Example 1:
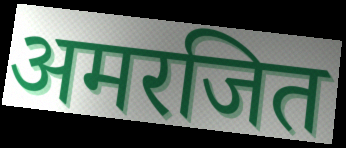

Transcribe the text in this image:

अमरजित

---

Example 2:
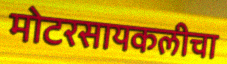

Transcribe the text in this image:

मोटरसायकलीचा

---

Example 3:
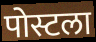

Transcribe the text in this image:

पोस्टला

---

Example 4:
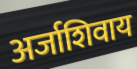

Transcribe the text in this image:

अर्जाशिवाय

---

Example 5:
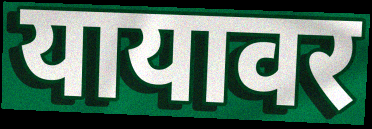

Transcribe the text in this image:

यायावर